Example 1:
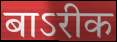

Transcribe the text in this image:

बाऽरीक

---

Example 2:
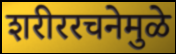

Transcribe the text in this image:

शरीररचनेमुळे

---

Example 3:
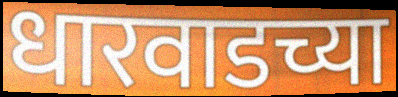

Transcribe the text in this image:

धारवाडच्या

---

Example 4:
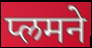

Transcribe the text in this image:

प्लमने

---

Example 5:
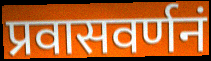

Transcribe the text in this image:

प्रवासवर्णनं